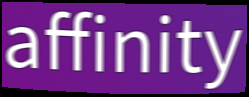
affinity